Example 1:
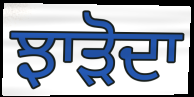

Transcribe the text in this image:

ਝਾੜੋਦਾ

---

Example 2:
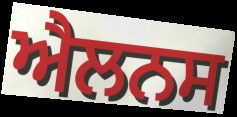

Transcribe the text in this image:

ਐਲਨਸ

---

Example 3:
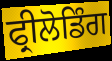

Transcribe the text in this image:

ਫ੍ਰੀਲੋਡਿੰਗ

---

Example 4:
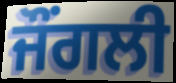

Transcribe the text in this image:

ਜੌਂਗਲੀ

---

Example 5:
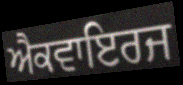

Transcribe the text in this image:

ਐਕਵਾਇਰਜ